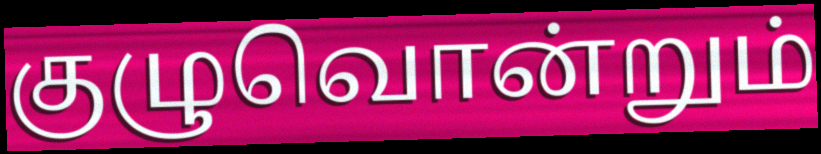
குழுவொன்றும்